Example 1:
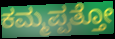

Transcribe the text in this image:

ಕಮ್ಮಪ್ಪತ್ತೋ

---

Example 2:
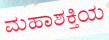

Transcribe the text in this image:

ಮಹಾಶಕ್ತಿಯ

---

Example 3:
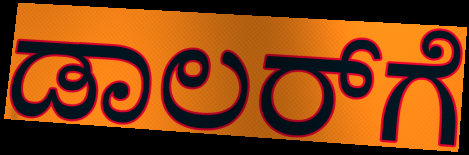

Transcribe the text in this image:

ಡಾಲರ್‌ಗೆ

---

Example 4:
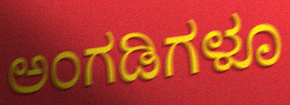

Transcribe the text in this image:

ಅಂಗಡಿಗಳೂ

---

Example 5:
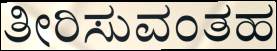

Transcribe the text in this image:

ತೀರಿಸುವಂತಹ